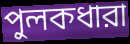
পুলকধারা